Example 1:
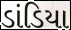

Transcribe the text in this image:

ડાંડિયા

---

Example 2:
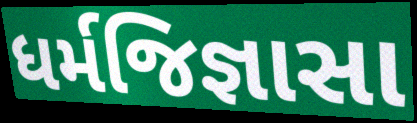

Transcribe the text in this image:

ધર્મજિજ્ઞાસા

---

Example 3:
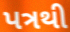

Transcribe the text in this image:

પત્રથી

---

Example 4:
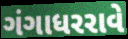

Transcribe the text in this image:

ગંગાધરરાવે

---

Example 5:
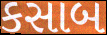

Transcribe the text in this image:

કસાબ